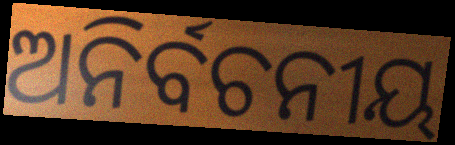
ଅନିର୍ବଚନୀୟ